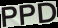
PPD